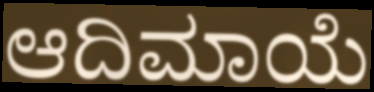
ಆದಿಮಾಯೆ